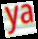
ya